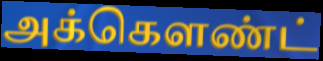
அக்கெளண்ட்